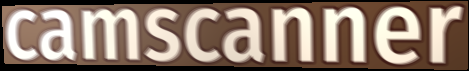
camscanner